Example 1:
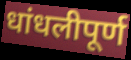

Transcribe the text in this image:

धांधलीपूर्ण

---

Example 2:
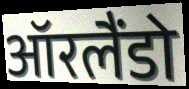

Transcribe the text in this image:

ऑरलैंडो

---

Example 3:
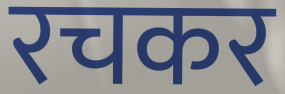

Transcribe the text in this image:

रचकर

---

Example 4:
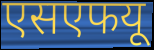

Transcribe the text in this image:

एसएफयू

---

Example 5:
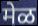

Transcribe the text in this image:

मेळ